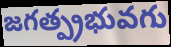
జగత్ప్రభువగు